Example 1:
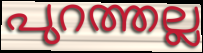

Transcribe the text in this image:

പുറത്തല്ല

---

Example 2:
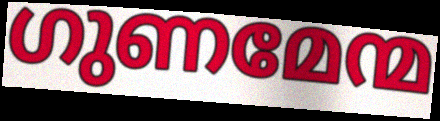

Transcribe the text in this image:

ഗുണമേന്മ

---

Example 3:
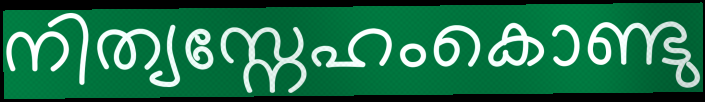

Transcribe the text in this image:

നിത്യസ്നേഹംകൊണ്ടു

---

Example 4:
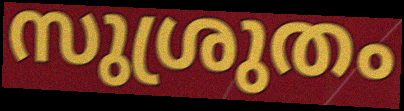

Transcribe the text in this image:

സുശ്രുതം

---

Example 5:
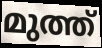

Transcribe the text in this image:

മുത്ത്